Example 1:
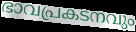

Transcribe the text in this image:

ഭാവപ്രകടനവും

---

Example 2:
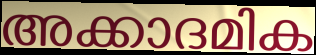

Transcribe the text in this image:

അക്കാദമിക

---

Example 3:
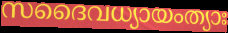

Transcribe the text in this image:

സദൈവധ്യായംത്യാഃ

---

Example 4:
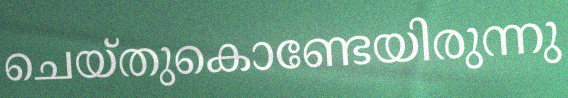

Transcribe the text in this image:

ചെയ്തുകൊണ്ടേയിരുന്നു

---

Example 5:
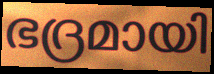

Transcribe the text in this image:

ഭദ്രമായി